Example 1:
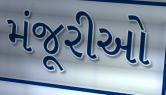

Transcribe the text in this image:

મંજૂરીઓ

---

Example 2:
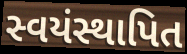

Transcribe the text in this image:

સ્વયંસ્થાપિત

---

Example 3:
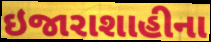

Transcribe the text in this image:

ઇજારાશાહીના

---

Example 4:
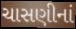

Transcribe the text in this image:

ચાસણીનાં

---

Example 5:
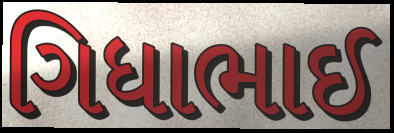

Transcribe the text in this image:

ગિધાભાઈ